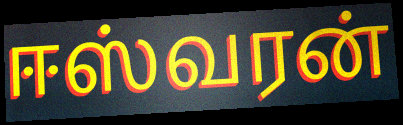
ஈஸ்வரன்